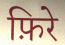
फ़िरे